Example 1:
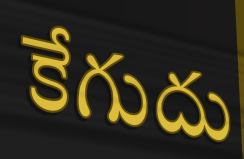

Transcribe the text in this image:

కేగుదు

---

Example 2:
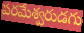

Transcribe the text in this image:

పరమేశ్వరుడగు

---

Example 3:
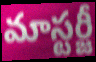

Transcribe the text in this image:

మాస్టర్జీ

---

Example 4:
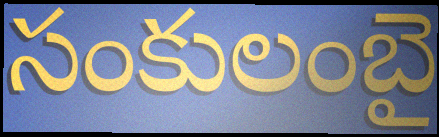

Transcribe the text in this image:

సంకులంబై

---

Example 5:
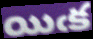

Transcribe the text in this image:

యిఁక